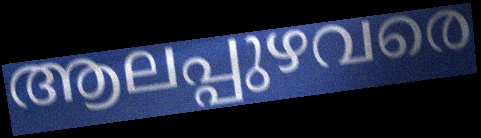
ആലപ്പുഴവരെ